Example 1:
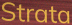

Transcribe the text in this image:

Strata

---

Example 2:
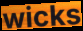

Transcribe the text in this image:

wicks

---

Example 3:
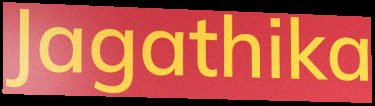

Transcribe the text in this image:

Jagathika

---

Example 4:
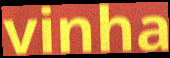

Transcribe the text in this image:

vinha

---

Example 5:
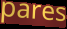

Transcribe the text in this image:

pares